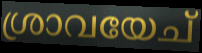
ശ്രാവയേച്